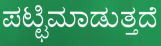
ಪಟ್ಟಿಮಾಡುತ್ತದೆ